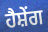
ਹੈਸ਼ੇਂਗ